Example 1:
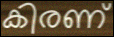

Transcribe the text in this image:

കിരണ്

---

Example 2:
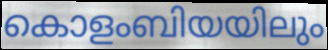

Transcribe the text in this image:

കൊളംബിയയിലും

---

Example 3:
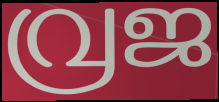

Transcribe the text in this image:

വ്രജ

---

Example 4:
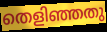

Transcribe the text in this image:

തെളിഞ്ഞതു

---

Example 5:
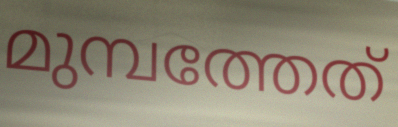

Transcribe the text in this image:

മുമ്പത്തേത്